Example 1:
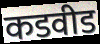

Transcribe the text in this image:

कडवीड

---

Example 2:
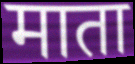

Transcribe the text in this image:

माता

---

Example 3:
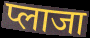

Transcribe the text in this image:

प्लाजा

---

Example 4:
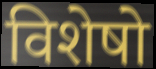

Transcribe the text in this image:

विशेषो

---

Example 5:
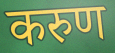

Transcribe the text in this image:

करुण